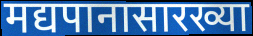
मद्यपानासारख्या